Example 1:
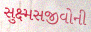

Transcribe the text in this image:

સુક્ષ્મસજીવોની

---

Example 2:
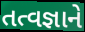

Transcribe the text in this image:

તત્વજ્ઞાને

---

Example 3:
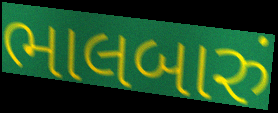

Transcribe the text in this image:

ભાલબારું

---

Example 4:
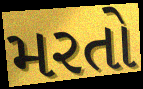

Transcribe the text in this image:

મરતો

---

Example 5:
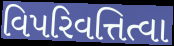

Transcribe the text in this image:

વિપરિવત્તિત્વા